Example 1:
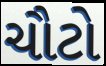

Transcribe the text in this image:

ચૌટો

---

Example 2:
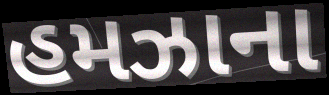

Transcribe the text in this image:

હમઝાના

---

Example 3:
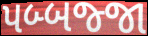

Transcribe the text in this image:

પબ્બજ્જા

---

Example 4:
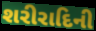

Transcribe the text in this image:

શરીરાદિની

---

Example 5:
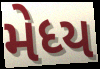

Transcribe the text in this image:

મેધ્ય